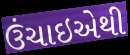
ઉંચાઇએથી